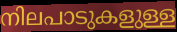
നിലപാടുകളുള്ള